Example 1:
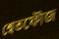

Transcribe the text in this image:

শ্বেতফৌজ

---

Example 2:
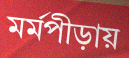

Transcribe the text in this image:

মর্মপীড়ায়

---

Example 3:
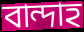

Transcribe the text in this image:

বান্দাহ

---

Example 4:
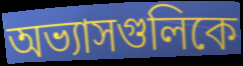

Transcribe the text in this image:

অভ্যাসগুলিকে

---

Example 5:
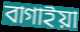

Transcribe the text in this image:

বাগাইয়া